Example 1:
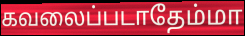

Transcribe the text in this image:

கவலைப்படாதேம்மா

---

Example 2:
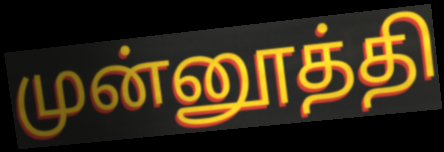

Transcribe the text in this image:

முன்னூத்தி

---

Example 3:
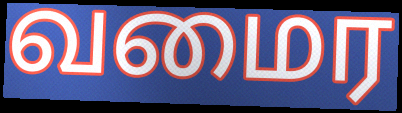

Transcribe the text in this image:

வமைர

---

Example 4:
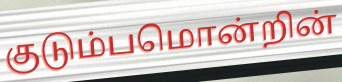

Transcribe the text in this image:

குடும்பமொன்றின்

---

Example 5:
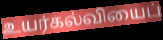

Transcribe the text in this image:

உயர்கல்வியைப்